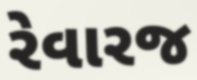
રેવારજ